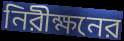
নিরীক্ষনের